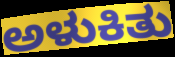
ಅಳುಕಿತು